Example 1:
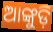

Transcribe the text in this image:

ଆଙ୍କୁଡ଼ି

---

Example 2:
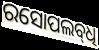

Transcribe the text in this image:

ରସୋପଲବ୍‌ଧି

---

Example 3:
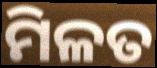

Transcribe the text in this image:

ମିଳତ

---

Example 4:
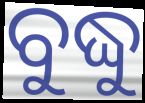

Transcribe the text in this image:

ବୁଦ୍ଧୁ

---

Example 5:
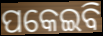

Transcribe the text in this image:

ପକେଇବି